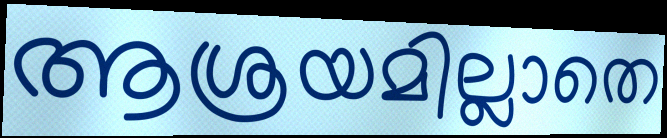
ആശ്രയമില്ലാതെ